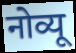
नोव्यू